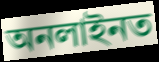
অনলাইনত